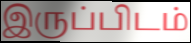
இருப்பிடம்